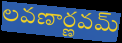
లవణార్ణవమ్